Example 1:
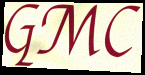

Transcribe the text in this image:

GMC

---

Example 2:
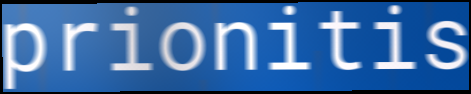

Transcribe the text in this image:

prionitis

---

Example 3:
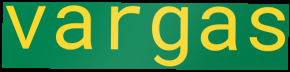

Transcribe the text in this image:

vargas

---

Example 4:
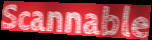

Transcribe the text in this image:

Scannable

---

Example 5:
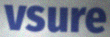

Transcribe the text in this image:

vsure